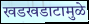
खडखडाटामुळे